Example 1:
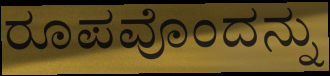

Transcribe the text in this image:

ರೂಪವೊಂದನ್ನು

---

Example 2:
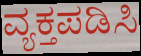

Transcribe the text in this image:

ವ್ಯಕ್ತಪಡಿಸಿ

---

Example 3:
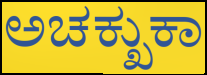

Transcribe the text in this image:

ಅಚಕ್ಖುಕಾ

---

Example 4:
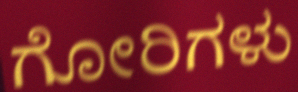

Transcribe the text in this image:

ಗೋರಿಗಳು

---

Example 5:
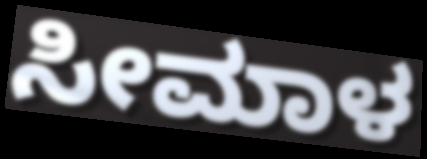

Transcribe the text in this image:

ಸೀಮಾಳ